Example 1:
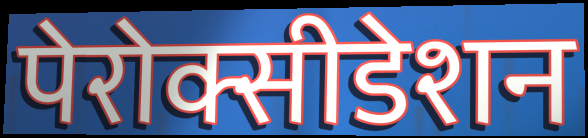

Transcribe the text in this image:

पेरोक्सीडेशन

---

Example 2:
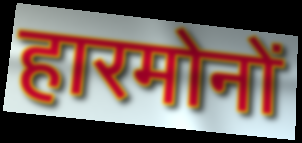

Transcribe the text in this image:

हारमोनों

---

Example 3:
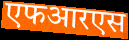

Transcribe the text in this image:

एफआरएस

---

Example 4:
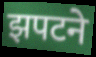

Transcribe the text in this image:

झपटने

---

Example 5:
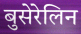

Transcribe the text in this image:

बुसेरेलिन